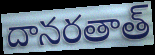
దానరతాత్